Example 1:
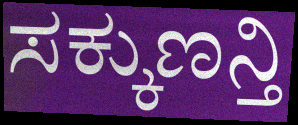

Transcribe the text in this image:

ಸಕ್ಕುಣನ್ತಿ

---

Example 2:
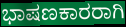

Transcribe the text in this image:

ಭಾಷಣಕಾರರಾಗಿ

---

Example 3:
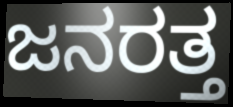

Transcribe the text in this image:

ಜನರತ್ತ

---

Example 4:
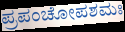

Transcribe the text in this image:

ಪ್ರಪಂಚೋಪಶಮಃ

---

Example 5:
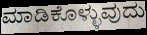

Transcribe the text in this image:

ಮಾಡಿಕೊಳ್ಳುವುದು